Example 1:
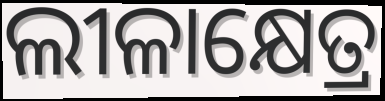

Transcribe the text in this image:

ଲୀଳାକ୍ଷେତ୍ର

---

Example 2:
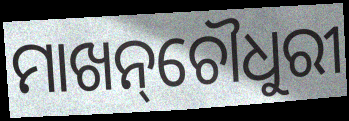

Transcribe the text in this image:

ମାଖନ୍‌ଚୌଧୁରୀ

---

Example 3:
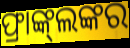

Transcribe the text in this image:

ଫ୍ରାଙ୍କ୍‌ଲଙ୍କର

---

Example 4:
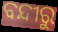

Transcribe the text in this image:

ବନ୍ଦୀରୁ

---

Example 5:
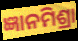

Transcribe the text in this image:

ଜ୍ଞାନମିଶ୍ରା